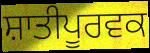
ਸ਼ਾਤੀਪੂਰਵਕ